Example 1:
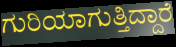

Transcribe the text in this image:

ಗುರಿಯಾಗುತ್ತಿದ್ದಾರೆ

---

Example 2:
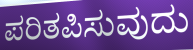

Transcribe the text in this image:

ಪರಿತಪಿಸುವುದು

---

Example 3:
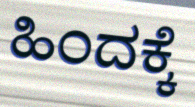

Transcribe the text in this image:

ಹಿಂದಕ್ಕೆ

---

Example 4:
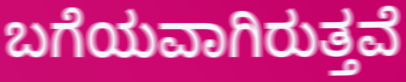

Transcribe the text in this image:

ಬಗೆಯವಾಗಿರುತ್ತವೆ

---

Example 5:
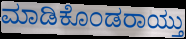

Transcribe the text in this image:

ಮಾಡಿಕೊಂಡರಾಯ್ತು